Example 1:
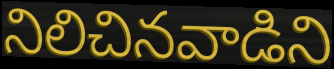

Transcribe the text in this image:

నిలిచినవాడిని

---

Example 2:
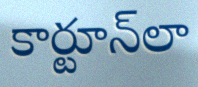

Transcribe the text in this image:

కార్టూన్‌లా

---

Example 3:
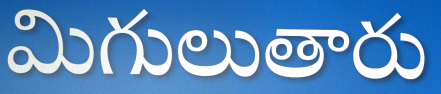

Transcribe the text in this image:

మిగులుతారు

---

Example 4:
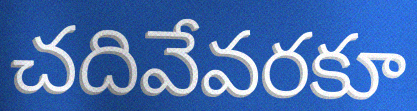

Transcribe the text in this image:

చదివేవరకూ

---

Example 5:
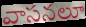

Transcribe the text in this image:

వాసనలూ